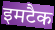
इमटैक